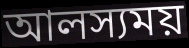
আলস্যময়